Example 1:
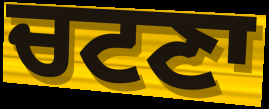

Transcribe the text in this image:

ਚਟਣਾ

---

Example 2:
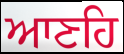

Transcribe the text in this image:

ਆਣਹਿ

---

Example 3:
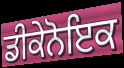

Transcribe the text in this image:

ਡੀਕੇਨੋਇਕ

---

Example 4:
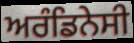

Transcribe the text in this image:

ਅਰੰਡਿਨੇਸੀ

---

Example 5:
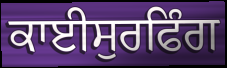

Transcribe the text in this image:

ਕਾਈਸੁਰਫਿੰਗ